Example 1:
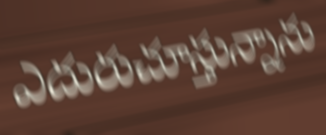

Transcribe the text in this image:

ఎదురుచూస్తున్నాను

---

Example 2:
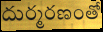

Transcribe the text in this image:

దుర్మరణంతో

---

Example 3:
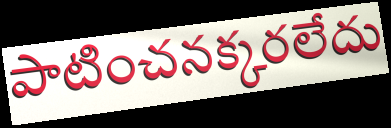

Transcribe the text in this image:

పాటించనక్కరలేదు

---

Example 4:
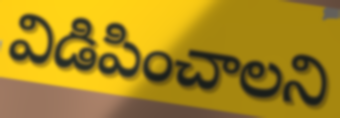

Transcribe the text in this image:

విడిపించాలని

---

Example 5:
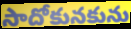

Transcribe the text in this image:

సాదోకునకును